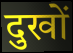
दुखों